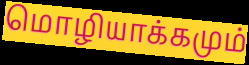
மொழியாக்கமும்